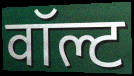
वॉल्ट